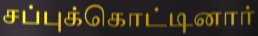
சப்புக்கொட்டினார்